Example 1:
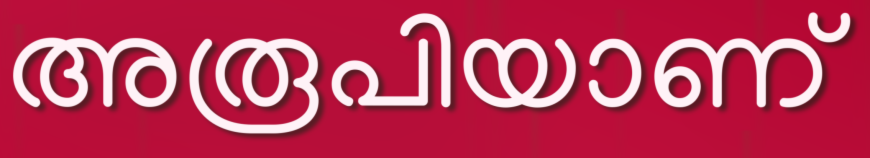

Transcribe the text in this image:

അരൂപിയാണ്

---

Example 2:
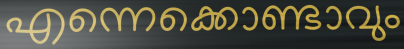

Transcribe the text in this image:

എന്നെക്കൊണ്ടാവും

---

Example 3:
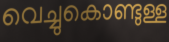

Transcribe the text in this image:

വെച്ചുകൊണ്ടുള്ള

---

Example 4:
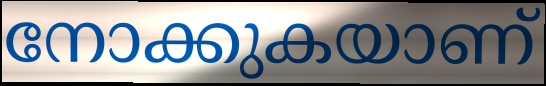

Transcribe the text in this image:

നോക്കുകയാണ്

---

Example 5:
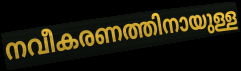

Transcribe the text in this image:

നവീകരണത്തിനായുള്ള